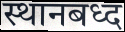
स्थानबध्द